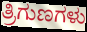
ತ್ರಿಗುಣಗಳು